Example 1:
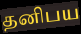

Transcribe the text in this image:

தனிபய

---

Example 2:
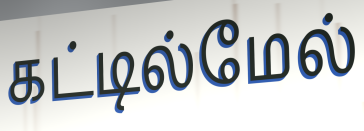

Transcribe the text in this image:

கட்டில்மேல்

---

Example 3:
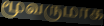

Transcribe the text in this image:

மூவருமாக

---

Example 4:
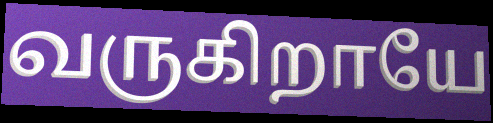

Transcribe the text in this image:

வருகிறாயே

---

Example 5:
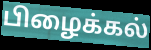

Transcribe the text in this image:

பிழைக்கல்